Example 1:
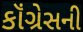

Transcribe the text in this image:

કૉંગ્રેસની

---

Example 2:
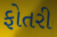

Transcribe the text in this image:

ફોતરી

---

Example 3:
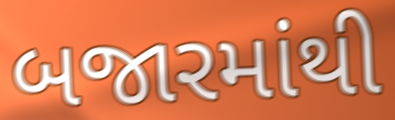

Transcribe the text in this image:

બજારમાંથી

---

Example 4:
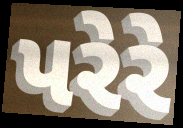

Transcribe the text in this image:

પરેરે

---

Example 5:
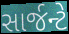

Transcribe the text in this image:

સાર્જન્ટે